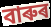
বাৰুৰ